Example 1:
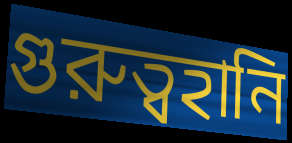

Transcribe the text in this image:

গুরুত্বহানি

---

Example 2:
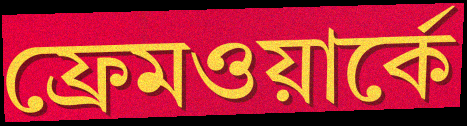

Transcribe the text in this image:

ফ্রেমওয়ার্কে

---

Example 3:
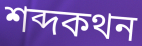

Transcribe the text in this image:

শব্দকথন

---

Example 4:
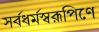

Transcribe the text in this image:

সর্বধর্মস্বরূপিণে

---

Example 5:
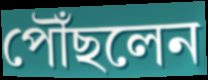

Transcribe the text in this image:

পৌঁছলেন